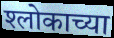
श्लोकाच्या